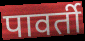
पावर्ती